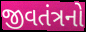
જીવતંત્રનો